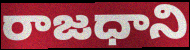
రాజధాని